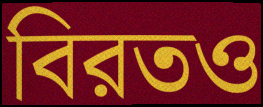
বিরতও